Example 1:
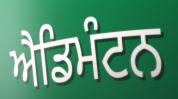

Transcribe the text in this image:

ਐਡਿਮੰਟਨ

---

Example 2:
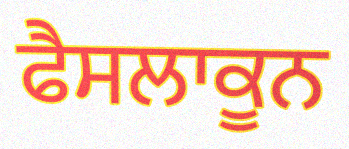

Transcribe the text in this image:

ਫੈਸਲਾਕੂਨ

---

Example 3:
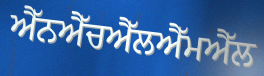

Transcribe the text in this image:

ਐੱਨਐੱਚਐੱਲਐੱਮਐੱਲ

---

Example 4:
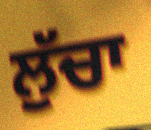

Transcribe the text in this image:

ਲੁੱਚਾ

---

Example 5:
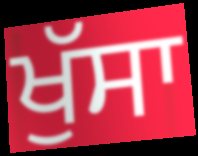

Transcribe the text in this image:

ਖੁੱਸਾ